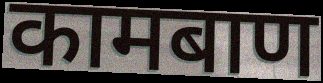
कामबाण